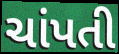
ચાંપતી